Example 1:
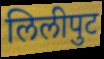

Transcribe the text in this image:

लिलीपुट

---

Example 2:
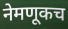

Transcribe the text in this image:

नेमणूकच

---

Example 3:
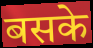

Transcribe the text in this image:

बसके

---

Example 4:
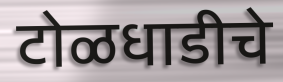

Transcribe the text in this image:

टोळधाडीचे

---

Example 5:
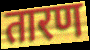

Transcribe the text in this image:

तारण